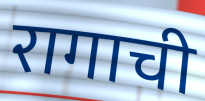
रागाची